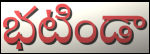
భటిండా